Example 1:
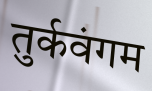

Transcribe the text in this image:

तुर्कवंगम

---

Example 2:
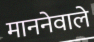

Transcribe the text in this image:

माननेवाले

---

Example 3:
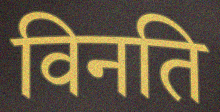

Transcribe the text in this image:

विनति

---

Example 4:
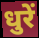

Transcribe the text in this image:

धुरें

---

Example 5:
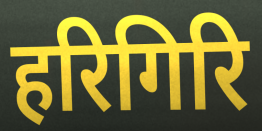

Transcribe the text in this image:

हरिगिरि